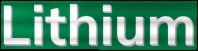
Lithium